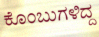
ಕೊಂಬುಗಳಿದ್ದ